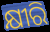
କ୍ଷୀରି